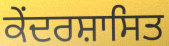
ਕੇਂਦਰਸ਼ਾਸਿਤ